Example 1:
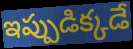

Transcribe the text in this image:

ఇప్పుడిక్కడే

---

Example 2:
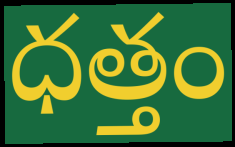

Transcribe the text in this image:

ధత్తం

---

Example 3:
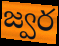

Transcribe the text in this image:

జ్వర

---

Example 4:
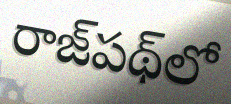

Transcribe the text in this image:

రాజ్‌పథ్‌లో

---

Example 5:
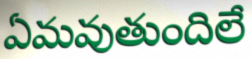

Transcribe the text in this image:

ఏమవుతుందిలే